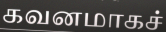
கவனமாகச்